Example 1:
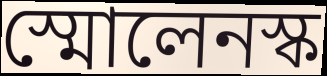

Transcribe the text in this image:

স্মোলেনস্ক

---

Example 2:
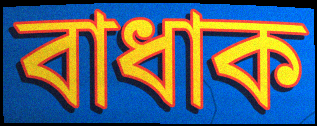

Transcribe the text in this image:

বাধাক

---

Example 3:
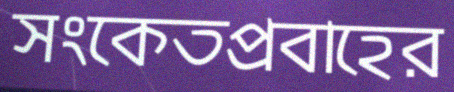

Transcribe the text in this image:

সংকেতপ্রবাহের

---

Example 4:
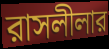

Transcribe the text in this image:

রাসলীলার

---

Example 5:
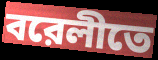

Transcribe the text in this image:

বরেলীতে